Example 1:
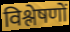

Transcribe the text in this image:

विश्लेषणों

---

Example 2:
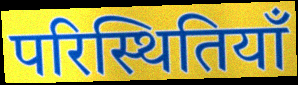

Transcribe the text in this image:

परिस्थितियाँ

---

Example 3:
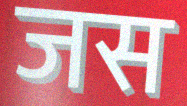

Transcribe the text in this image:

जस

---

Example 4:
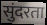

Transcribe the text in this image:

सुंदरता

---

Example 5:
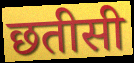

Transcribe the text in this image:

छतीसी